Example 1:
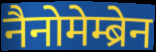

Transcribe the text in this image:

नैनोमेम्ब्रेन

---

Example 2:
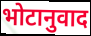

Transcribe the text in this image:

भोटानुवाद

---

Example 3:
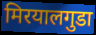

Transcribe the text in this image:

मिरयालगुडा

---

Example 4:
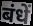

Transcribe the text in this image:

बंधें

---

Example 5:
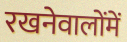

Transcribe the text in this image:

रखनेवालोंमें